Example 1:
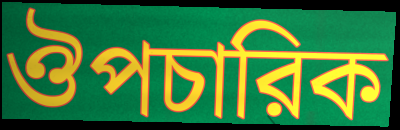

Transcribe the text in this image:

ঔপচারিক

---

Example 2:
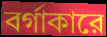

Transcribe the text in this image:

বর্গাকারে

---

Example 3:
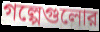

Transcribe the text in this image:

গল্পেগুলোর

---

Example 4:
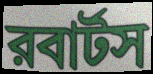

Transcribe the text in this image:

রবার্টস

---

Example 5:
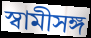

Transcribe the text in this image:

স্বামীসঙ্গ